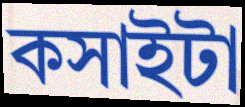
কসাইটা